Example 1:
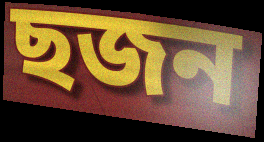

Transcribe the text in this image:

ছজন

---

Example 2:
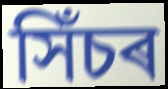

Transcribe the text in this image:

সিঁচৰ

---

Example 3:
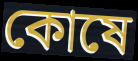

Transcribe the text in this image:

কোষে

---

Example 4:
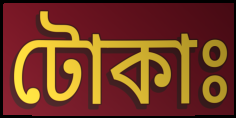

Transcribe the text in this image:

টোকাঃ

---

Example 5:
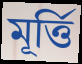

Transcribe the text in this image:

মূৰ্ত্তি